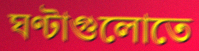
ঘণ্টাগুলোতে